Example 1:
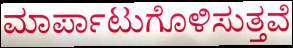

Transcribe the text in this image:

ಮಾರ್ಪಾಟುಗೊಳಿಸುತ್ತವೆ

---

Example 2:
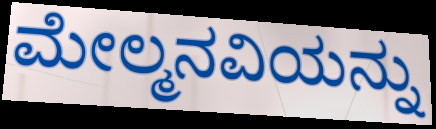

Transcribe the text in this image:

ಮೇಲ್ಮನವಿಯನ್ನು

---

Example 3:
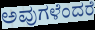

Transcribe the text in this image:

ಅವುಗಳೆಂದರೆ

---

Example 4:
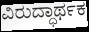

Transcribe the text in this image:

ವಿರುದ್ಧಾರ್ಥಕ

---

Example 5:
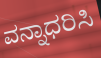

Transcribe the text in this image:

ವನ್ನಾಧರಿಸಿ